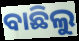
ବାଛିଲୁ